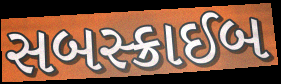
સબસ્ક્રાઈબ